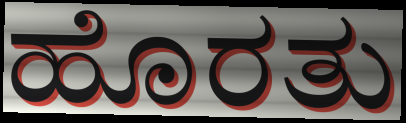
ಹೊರತು